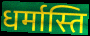
धर्मास्ति